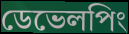
ডেভেলপিং